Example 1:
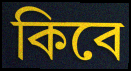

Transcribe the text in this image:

কিবে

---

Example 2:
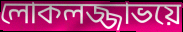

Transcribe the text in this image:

লোকলজ্জাভয়ে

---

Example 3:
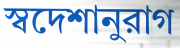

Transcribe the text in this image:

স্বদেশানুরাগ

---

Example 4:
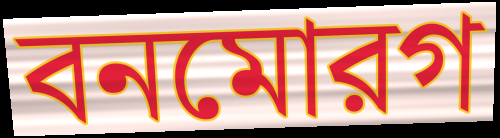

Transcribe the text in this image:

বনমোরগ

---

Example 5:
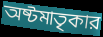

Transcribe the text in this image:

অষ্টমাতৃকার